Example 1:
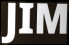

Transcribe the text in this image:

JIM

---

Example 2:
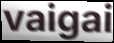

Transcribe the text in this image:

vaigai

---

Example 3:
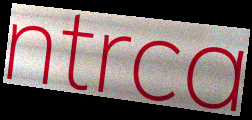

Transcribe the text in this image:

ntrca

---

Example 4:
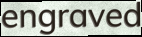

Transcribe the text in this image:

engraved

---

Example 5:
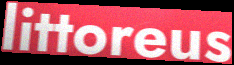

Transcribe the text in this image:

littoreus